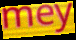
mey